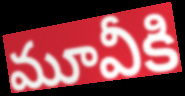
మూవీకి